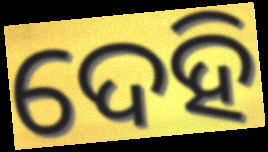
ଦେହି